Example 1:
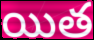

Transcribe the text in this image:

యిత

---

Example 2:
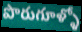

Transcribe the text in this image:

పొరుగూళ్ళో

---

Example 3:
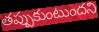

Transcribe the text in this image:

తప్పుకుంటుందని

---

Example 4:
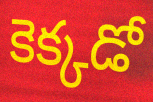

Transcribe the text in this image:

కెక్కడో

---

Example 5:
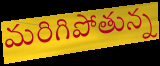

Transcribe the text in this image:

మరిగిపోతున్న